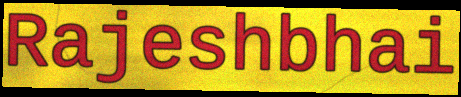
Rajeshbhai